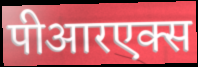
पीआरएक्स